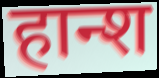
हान्श